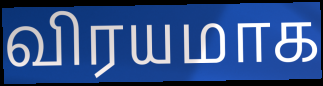
விரயமாக